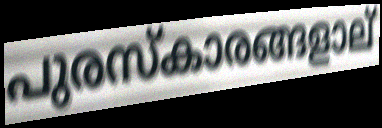
പുരസ്കാരങ്ങളാല്